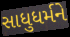
સાધુધર્મને